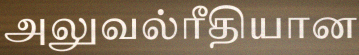
அலுவல்ரீதியான